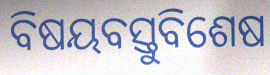
ବିଷୟବସ୍ତୁବିଶେଷ